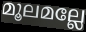
മൂലമല്ലേ